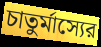
চাতুর্মাস্যের